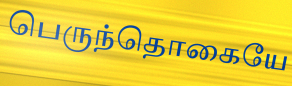
பெருந்தொகையே